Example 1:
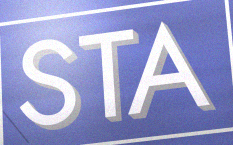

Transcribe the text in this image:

STA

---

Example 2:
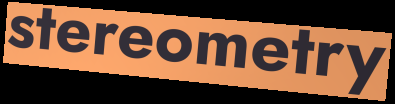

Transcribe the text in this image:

stereometry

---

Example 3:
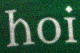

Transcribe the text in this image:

hoi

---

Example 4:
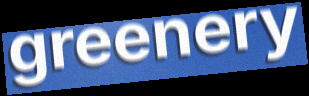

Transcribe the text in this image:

greenery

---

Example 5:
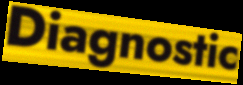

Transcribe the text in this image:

Diagnostic